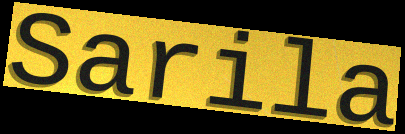
Sarila